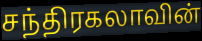
சந்திரகலாவின்